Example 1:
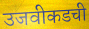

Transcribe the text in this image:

उजवीकडची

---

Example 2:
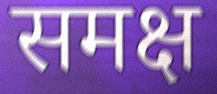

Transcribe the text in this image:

समक्ष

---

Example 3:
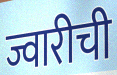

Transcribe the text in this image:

ज्वारीची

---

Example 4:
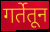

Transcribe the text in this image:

गर्तेतून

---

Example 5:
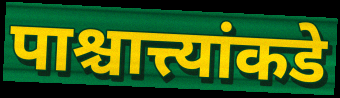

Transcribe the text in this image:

पाश्चात्त्यांकडे